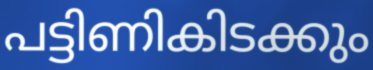
പട്ടിണികിടക്കും